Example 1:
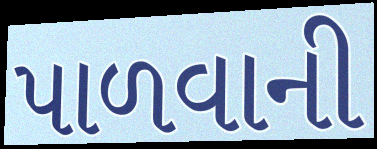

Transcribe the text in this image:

પાળવાની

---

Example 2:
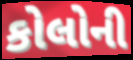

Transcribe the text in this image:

કોલોની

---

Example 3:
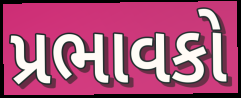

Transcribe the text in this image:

પ્રભાવકો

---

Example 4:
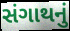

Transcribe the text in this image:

સંગાથનું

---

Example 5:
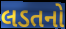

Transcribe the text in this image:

લડતનો